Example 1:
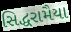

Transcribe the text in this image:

સિદ્ધરામૈયા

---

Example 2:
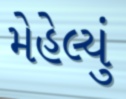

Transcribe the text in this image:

મેહેલ્યું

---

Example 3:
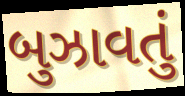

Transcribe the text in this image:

બુઝાવતું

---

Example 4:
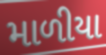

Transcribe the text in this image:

માળીયા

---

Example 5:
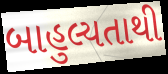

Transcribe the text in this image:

બાહુલ્યતાથી